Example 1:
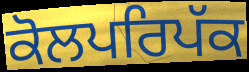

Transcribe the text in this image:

ਕੋਲਪਰਿਪੱਕ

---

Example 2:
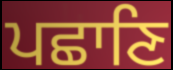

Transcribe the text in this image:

ਪਛਾਣਿ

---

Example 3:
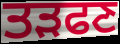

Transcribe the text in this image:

ਤੜਫਣ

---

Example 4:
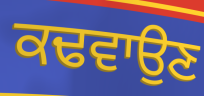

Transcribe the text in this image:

ਕਢਵਾਉਣ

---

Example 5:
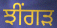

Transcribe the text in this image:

ਝੀਂਗੜ